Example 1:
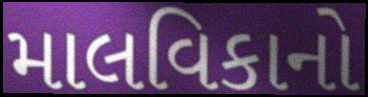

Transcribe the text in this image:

માલવિકાનો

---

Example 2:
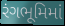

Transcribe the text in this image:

રંગભૂમિમાં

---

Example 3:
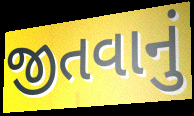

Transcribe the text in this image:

જીતવાનું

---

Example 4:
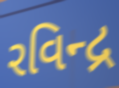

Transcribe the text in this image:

રવિન્દ્ર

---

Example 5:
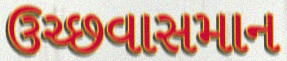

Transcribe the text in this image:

ઉચ્છવાસમાન